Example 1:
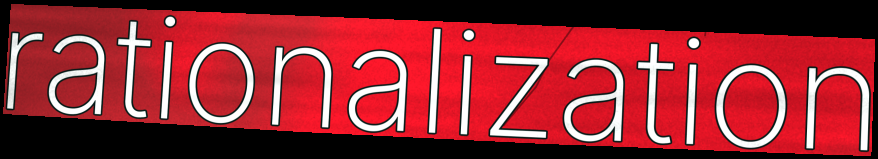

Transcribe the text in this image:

rationalization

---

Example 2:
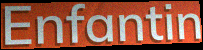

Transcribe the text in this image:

Enfantin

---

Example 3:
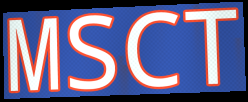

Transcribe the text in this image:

MSCT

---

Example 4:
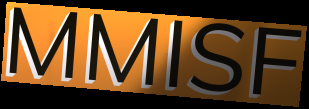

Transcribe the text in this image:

MMISF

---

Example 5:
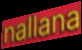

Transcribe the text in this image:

nallana